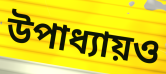
উপাধ্যায়ও